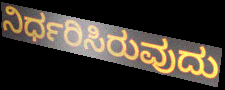
ನಿರ್ಧರಿಸಿರುವುದು